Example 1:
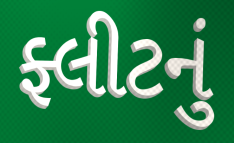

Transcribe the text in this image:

ફ્લીટનું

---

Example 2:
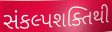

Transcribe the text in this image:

સંકલ્પશક્તિથી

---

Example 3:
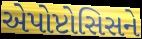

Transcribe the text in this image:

એપોપ્ટોસિસને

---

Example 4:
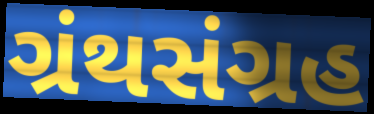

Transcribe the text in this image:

ગ્રંથસંગ્રહ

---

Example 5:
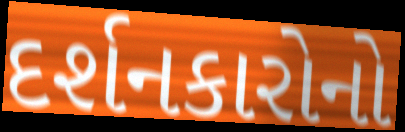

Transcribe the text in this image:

દર્શનકારોનો